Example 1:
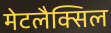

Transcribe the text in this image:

मेटलैक्सिल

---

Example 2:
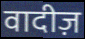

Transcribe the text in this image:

वादीज़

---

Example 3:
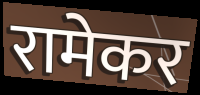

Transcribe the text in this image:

रामेकर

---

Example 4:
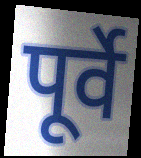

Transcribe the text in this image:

पूर्वे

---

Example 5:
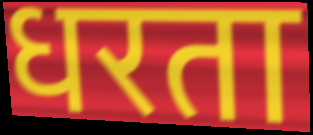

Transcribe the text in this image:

धरता